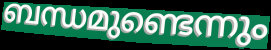
ബന്ധമുണ്ടെന്നും